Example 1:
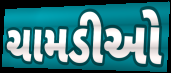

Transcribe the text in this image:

ચામડીઓ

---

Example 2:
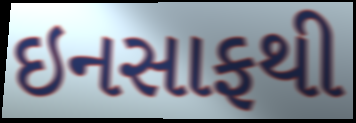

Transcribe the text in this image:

ઇનસાફથી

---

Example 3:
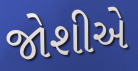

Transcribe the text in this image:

જોશીએ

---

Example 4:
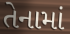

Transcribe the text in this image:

તેનામાં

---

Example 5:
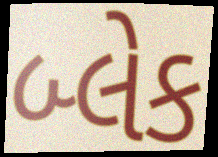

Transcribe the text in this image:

બ્લેક